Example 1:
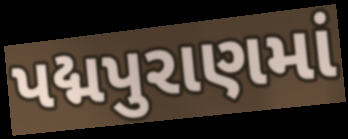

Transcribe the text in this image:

પદ્મપુરાણમાં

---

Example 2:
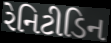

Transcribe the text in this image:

રેનિટીડિન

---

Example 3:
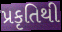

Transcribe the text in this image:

પ્રકૃતિથી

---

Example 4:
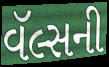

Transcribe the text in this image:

વૅલ્સની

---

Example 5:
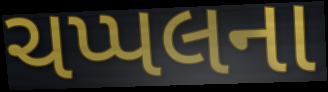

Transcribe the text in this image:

ચપ્પલના